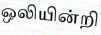
ஒலியின்றி